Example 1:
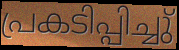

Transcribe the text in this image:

പ്രകടിപ്പിച്ചു്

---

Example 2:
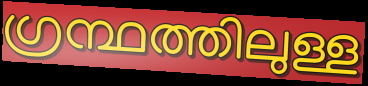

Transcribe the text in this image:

ഗ്രന്ഥത്തിലുള്ള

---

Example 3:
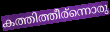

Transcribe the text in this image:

കത്തിത്തീര്ന്നൊരു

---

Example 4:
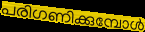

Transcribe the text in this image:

പരിഗണിക്കുമ്പോൾ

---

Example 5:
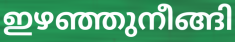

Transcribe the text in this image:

ഇഴഞ്ഞുനീങ്ങി